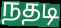
நதடி